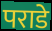
पराडे